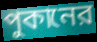
পুকানের